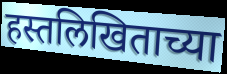
हस्तलिखिताच्या